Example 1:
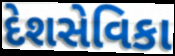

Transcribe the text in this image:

દેશસેવિકા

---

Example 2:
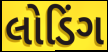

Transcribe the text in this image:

લોડિંગ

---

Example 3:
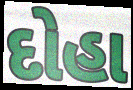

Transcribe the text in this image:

દોહા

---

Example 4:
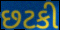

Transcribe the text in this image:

છટકી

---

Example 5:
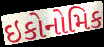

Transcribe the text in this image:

ઇકોનોમિક